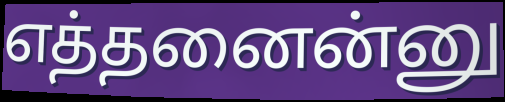
எத்தனைன்னு